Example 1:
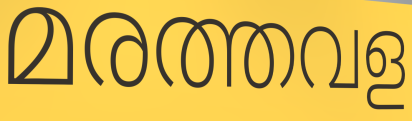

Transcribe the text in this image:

മരത്തവള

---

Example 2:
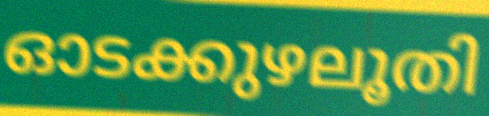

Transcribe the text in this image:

ഓടക്കുഴലൂതി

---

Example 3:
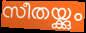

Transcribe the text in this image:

സീതയ്ക്കും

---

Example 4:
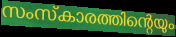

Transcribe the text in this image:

സംസ്‌കാരത്തിന്റെയും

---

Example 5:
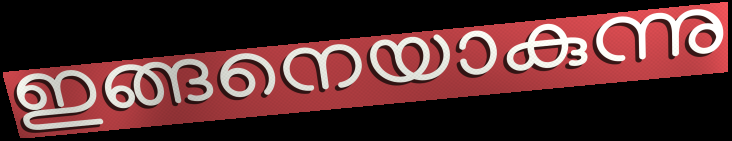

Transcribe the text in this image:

ഇങ്ങനെയാകുന്നു